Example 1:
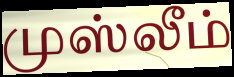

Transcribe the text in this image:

முஸ்லீம்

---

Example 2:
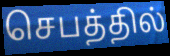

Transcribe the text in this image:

செபத்தில்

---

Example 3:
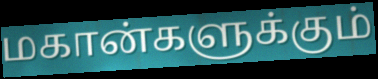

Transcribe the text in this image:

மகான்களுக்கும்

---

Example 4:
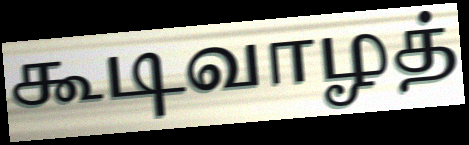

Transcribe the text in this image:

கூடிவாழத்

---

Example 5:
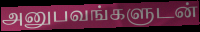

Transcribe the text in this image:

அனுபவங்களுடன்